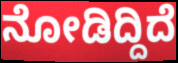
ನೋಡಿದ್ದಿದೆ